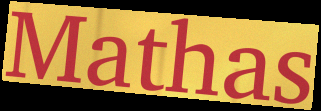
Mathas